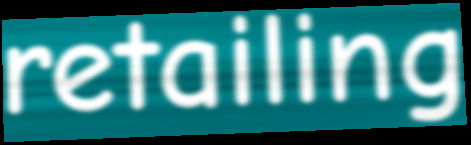
retailing